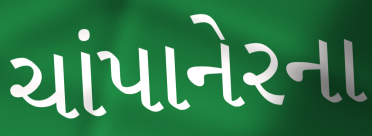
ચાંપાનેરના